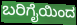
ಬರಿಗೈಯಿಂದ